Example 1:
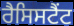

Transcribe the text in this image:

ਰੈਸਿਸਟੈਂਟ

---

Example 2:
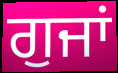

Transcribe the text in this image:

ਗੁਜਾਂ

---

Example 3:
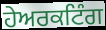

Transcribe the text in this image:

ਹੇਅਰਕਟਿੰਗ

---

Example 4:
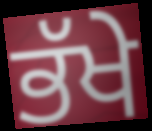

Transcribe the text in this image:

ਭੱਖੇ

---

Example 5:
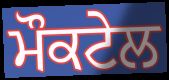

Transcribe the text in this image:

ਮੌਕਟੇਲ